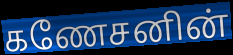
கணேசனின்